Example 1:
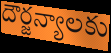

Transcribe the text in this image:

దౌర్జన్యాలకు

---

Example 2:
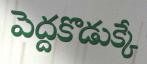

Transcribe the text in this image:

పెద్దకొడుక్కే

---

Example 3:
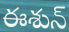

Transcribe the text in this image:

ఈశున్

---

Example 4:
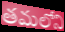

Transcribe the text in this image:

తమలోని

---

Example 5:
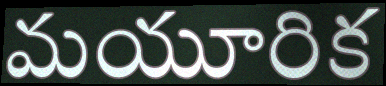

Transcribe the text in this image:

మయూరిక